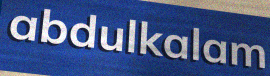
abdulkalam